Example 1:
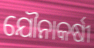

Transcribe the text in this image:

ଯୌନାକର୍ଷୀ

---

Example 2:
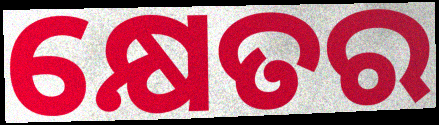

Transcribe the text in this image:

କ୍ଷେତର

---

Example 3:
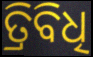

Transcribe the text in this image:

ତ୍ରିବିଧି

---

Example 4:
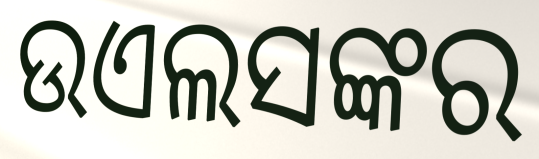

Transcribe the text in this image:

ଉଏଲସଙ୍କର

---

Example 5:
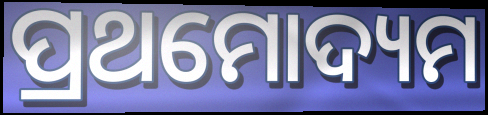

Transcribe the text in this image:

ପ୍ରଥମୋଦ୍ୟମ